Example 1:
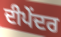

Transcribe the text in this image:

ਦੀਪੇਂਦਰ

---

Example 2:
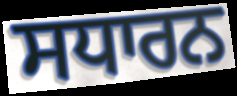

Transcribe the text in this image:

ਸਧਾਰਨ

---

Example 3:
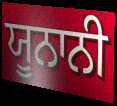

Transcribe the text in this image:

ਯੂਨਾਨੀ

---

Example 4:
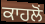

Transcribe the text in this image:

ਕਾਹਲੋਂ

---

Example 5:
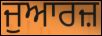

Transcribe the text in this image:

ਜੁਆਰਜ਼